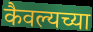
कैवल्यच्या